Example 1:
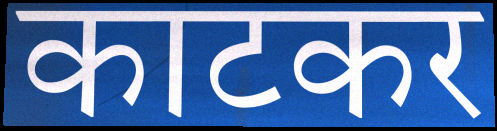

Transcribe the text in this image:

काटकर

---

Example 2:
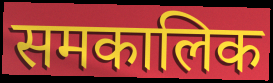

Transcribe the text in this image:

समकालिक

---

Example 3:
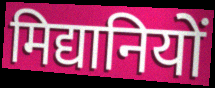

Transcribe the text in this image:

मिद्यानियों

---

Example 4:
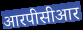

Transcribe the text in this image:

आरपीसीआर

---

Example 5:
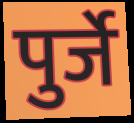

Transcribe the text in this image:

पुर्जे